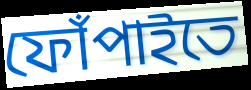
ফোঁপাইতে